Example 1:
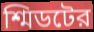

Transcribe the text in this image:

শ্মিডটের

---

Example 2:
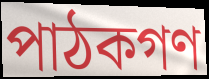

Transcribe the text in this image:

পাঠকগণ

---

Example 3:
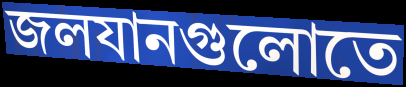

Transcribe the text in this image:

জলযানগুলোতে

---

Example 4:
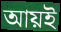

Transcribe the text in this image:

আয়ই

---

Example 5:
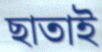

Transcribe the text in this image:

ছাতাই